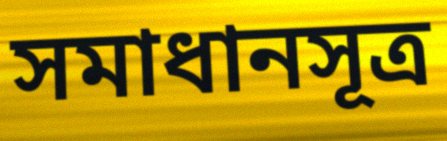
সমাধানসূত্র